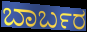
ಬಾರ್ಬರ